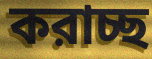
করাচ্ছ